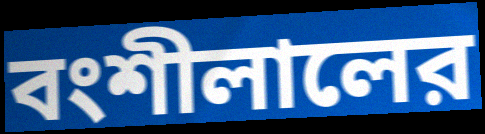
বংশীলালের